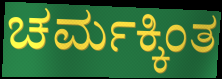
ಚರ್ಮಕ್ಕಿಂತ